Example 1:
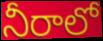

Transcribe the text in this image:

నీరాలో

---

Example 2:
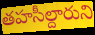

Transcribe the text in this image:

తహసీల్దారుని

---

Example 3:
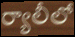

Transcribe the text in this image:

ర్యాలీలో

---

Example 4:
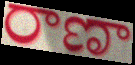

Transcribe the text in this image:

రాణా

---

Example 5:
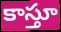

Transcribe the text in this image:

కాస్తూ